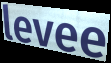
levee